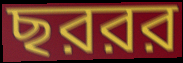
ছররর